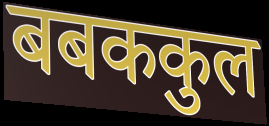
बबककुल